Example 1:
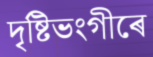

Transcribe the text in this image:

দৃষ্টিভংগীৰে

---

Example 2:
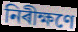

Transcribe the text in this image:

নিৰীক্ষণে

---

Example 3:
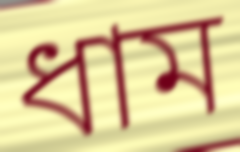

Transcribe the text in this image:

ধাম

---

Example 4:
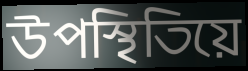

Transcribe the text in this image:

উপস্থিতিয়ে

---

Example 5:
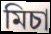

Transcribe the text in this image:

মিচা